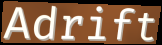
Adrift